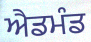
ਐਡਮੰਡ